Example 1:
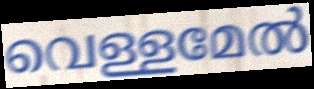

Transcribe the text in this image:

വെള്ളമേൽ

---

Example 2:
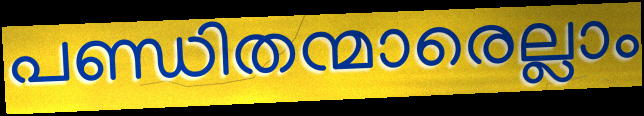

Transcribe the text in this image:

പണ്ഡിതന്മാരെല്ലാം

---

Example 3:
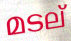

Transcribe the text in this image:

മടല്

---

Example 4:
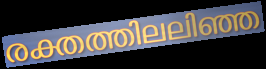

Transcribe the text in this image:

രക്തത്തിലലിഞ്ഞ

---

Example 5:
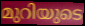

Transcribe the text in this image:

മുറിയുടെ